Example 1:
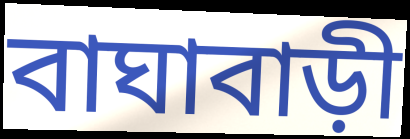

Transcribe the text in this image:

বাঘাবাড়ী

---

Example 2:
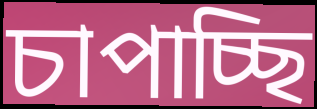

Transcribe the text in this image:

চাপাচ্ছি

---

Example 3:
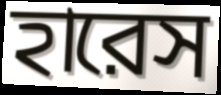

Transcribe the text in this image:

হারেস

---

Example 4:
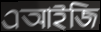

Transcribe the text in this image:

এআইজি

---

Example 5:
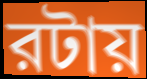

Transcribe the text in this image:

রটায়